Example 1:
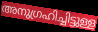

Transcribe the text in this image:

അനുഗ്രഹിച്ചിട്ടുള്ള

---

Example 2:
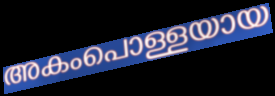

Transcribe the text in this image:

അകംപൊള്ളയായ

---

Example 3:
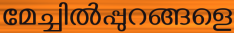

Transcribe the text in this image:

മേച്ചിൽപ്പുറങ്ങളെ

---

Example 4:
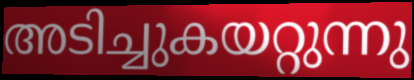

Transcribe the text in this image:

അടിച്ചുകയറ്റുന്നു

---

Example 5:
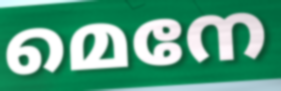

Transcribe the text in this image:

മെനേ